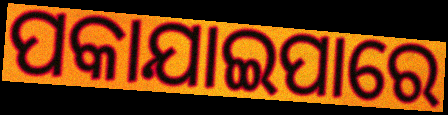
ପକାଯାଇପାରେ